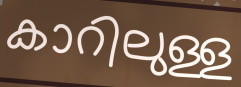
കാറിലുള്ള